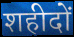
शहीदों